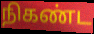
நிகண்ட